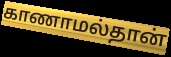
காணாமல்தான்